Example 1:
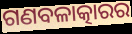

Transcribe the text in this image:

ଗଣବଳାତ୍କାରର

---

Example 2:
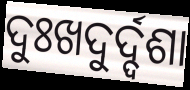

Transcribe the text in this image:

ଦୁଃଖଦୁର୍ଦ୍ଦଶା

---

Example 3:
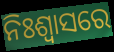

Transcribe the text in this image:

ନିଃଶ୍ଵାସରେ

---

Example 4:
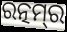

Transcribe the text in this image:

ରତ୍ନମ୍‌ର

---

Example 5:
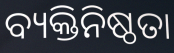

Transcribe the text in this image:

ବ୍ୟକ୍ତିନିଷ୍ଠତା